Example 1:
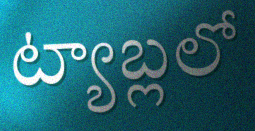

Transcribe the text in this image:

ట్యాబ్లలో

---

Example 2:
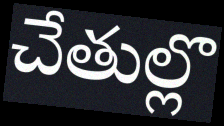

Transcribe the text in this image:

చేతుల్లొ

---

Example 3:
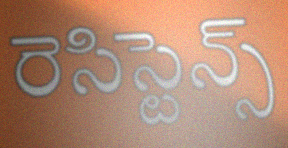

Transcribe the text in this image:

రెసిస్టెన్స్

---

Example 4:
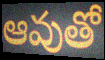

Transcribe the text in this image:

ఆవుతో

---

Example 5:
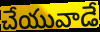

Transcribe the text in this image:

చేయువాడే